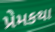
પ્રેમકથા